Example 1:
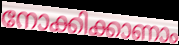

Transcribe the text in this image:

നോക്കിക്കാണാം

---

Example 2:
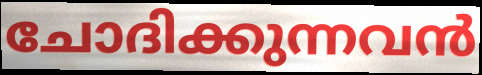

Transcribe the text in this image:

ചോദിക്കുന്നവൻ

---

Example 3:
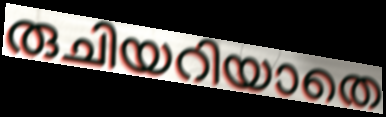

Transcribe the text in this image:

രുചിയറിയാതെ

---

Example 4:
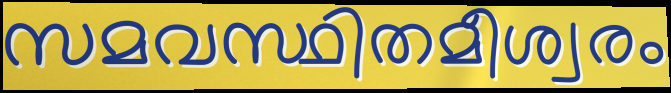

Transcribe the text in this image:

സമവസ്ഥിതമീശ്വരം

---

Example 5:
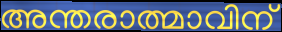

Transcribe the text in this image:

അന്തരാത്മാവിന്